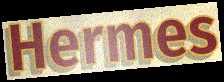
Hermes